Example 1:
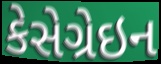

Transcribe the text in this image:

કેસેગ્રેઇન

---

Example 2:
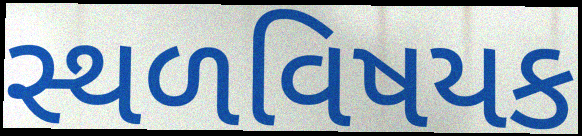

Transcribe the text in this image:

સ્થળવિષયક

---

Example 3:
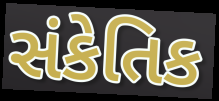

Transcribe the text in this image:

સંકેતિક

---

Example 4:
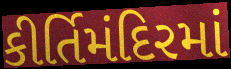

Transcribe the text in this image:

કીર્તિમંદિરમાં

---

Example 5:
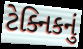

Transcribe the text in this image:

ટેક્નિકનું